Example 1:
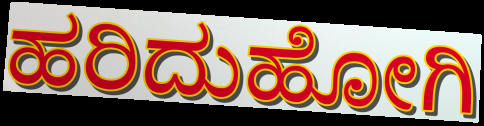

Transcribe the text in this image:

ಹರಿದುಹೋಗಿ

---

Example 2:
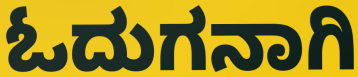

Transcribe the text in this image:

ಓದುಗನಾಗಿ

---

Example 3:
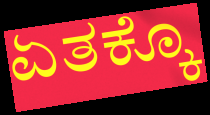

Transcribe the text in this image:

ಏತಕ್ಕೊ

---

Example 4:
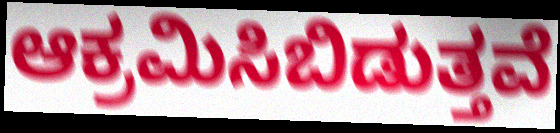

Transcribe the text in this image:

ಆಕ್ರಮಿಸಿಬಿಡುತ್ತವೆ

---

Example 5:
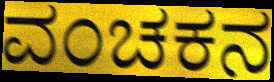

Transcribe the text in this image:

ವಂಚಕನ